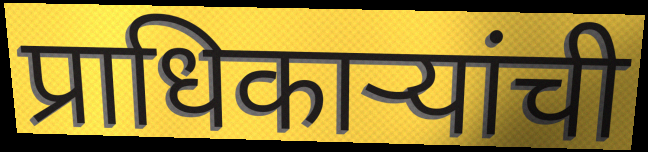
प्राधिकाऱ्यांची